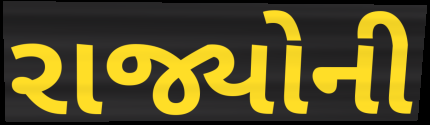
રાજ્યોની